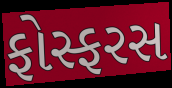
ફોસ્ફરસ